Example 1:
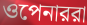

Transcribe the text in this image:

ওপেনাররা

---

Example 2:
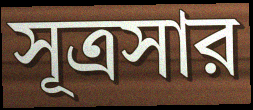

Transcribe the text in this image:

সূত্রসার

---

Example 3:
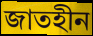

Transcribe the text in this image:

জাতহীন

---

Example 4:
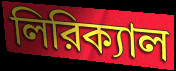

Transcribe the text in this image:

লিরিক্যাল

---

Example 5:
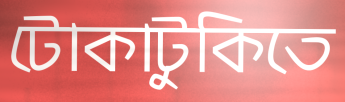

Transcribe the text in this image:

টোকাটুকিতে